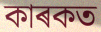
কাৰকত